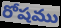
రోషము